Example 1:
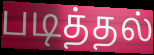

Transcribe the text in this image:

படித்தல்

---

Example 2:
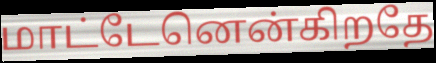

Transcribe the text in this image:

மாட்டேனென்கிறதே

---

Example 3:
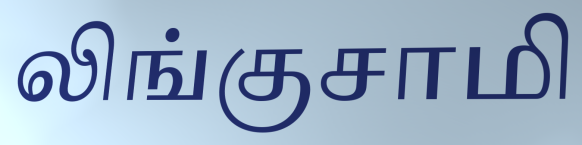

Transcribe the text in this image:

லிங்குசாமி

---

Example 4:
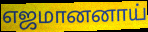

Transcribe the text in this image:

எஜமானனாய்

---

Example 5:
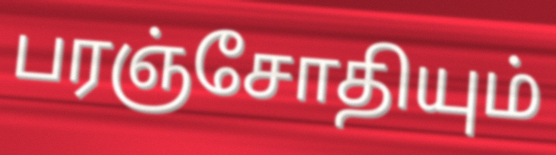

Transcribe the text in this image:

பரஞ்சோதியும்